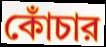
কোঁচার